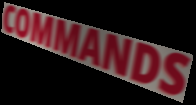
COMMANDS